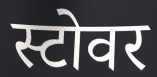
स्टोवर